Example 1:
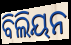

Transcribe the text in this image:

ବିଲିୟନ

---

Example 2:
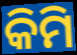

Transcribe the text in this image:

କିମି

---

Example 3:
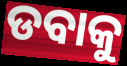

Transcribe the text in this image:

ଡବାକୁ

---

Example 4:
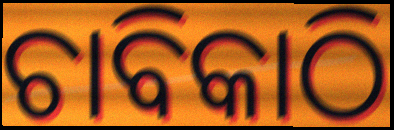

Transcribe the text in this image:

ଚାବିକାଠି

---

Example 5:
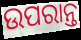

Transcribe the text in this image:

ଉପରାନ୍ତ